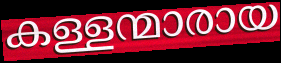
കള്ളന്മാരായ